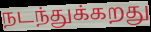
நடந்துக்கறது